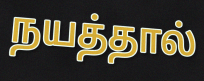
நயத்தால்